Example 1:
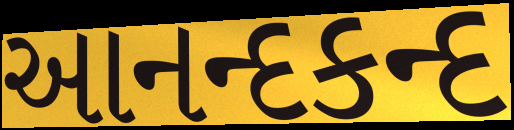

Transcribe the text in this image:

આનન્દકન્દ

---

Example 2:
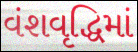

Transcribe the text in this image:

વંશવૃદ્ધિમાં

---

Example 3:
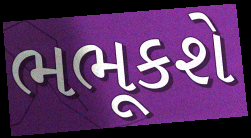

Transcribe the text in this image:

ભભૂકશે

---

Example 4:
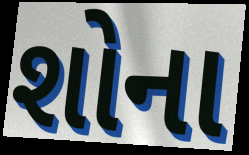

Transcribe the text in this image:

શોના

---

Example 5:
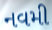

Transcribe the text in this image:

નવમી